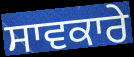
ਸਾਵਕਾਰੇ